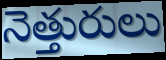
నెత్తురులు